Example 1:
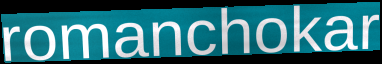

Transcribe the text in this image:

romanchokar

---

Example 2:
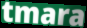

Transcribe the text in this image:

tmara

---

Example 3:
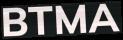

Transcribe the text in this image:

BTMA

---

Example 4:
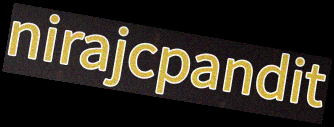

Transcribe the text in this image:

nirajcpandit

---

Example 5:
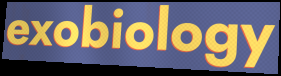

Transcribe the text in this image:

exobiology